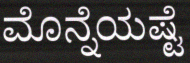
ಮೊನ್ನೆಯಷ್ಟೆ